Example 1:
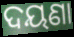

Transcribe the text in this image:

ଦୟଣା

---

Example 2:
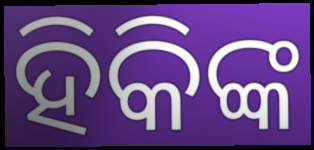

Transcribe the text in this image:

ହିକିଙ୍କ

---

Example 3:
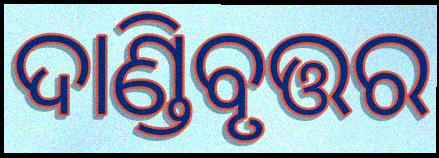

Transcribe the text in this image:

ଦାଣ୍ଡିବୃତ୍ତର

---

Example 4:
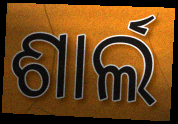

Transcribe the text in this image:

ଶାର୍ଲ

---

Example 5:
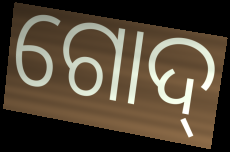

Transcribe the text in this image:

ଗୋଦ୍